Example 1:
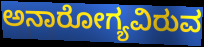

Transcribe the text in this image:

ಅನಾರೋಗ್ಯವಿರುವ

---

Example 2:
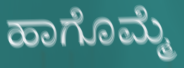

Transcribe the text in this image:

ಹಾಗೊಮ್ಮೆ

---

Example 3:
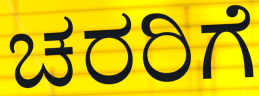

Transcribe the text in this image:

ಚರರಿಗೆ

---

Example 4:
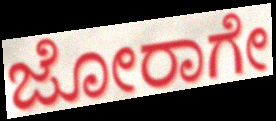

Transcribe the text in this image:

ಜೋರಾಗೇ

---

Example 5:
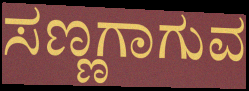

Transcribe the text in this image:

ಸಣ್ಣಗಾಗುವ